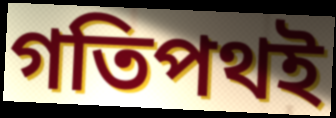
গতিপথই